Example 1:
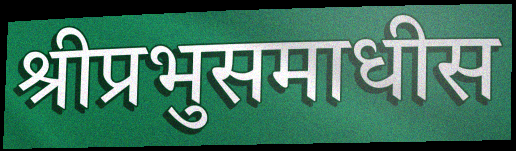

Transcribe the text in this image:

श्रीप्रभुसमाधीस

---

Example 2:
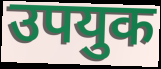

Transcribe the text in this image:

उपयुक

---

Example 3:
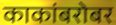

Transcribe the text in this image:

काकांबरोबर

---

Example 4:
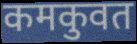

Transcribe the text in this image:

कमकुवत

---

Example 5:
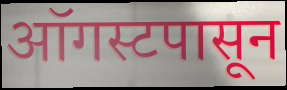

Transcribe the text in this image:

ऑगस्टपासून